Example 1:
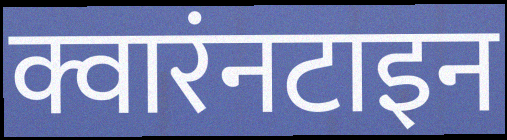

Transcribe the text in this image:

क्वारंनटाइन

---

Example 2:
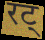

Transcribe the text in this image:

रट्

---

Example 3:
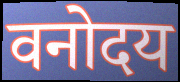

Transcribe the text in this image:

वनोदय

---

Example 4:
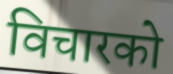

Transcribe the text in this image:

विचारको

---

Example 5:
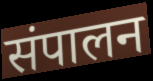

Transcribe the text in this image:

संपालन